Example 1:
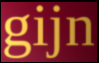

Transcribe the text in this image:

gijn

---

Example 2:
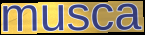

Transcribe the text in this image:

musca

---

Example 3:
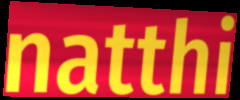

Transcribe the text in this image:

natthi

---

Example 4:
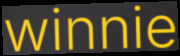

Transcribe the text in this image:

winnie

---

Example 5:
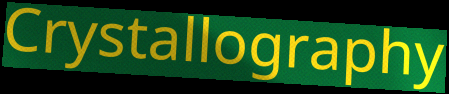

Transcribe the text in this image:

Crystallography